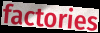
factories